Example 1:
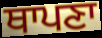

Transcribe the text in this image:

ਥਾਪਣਾ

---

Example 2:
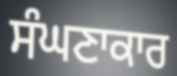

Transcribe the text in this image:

ਸੰਘਣਾਕਾਰ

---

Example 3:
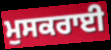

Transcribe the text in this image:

ਮੁਸਕਰਾਈ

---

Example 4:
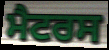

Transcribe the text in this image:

ਮੈਟਰਸ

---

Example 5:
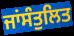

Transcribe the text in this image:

ਜਾਂਸੰਤੁਲਿਤ